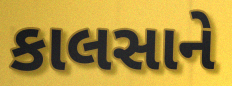
કાલસાને